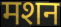
मशन